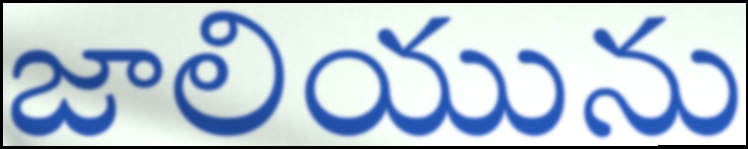
జాలియును